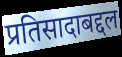
प्रतिसादाबद्दल